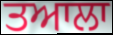
ਤਆਲਾ